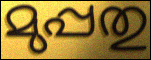
മുപ്പതു